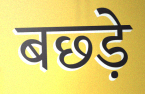
बछ्ड़े